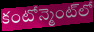
కంటోన్మెంట్‌లో